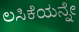
ಲಸಿಕೆಯನ್ನೇ